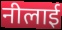
नीलाई